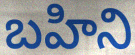
బహిని